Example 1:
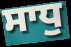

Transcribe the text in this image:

ਸਾਧੁ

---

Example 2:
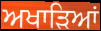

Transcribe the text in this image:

ਅਖਾੜਿਆਂ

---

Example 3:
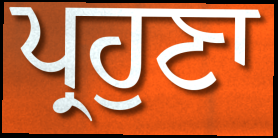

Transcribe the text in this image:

ਪ੍ਰਹੁਣਾ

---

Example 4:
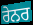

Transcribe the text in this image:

ਰੇਨਰ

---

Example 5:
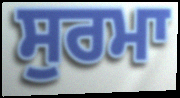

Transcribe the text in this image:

ਸੁਰਮਾ